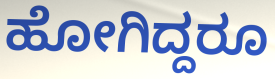
ಹೋಗಿದ್ದರೂ